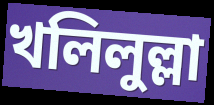
খলিলুল্লা